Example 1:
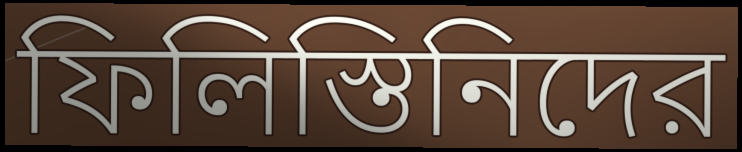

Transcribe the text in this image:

ফিলিস্তিনিদের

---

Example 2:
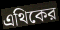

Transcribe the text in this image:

এথিকের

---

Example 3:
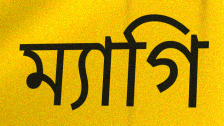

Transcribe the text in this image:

ম্যাগি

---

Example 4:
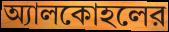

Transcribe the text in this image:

অ্যালকোহলের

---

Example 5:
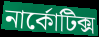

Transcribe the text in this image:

নার্কোটিক্স